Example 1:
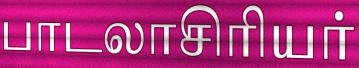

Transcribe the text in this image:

பாடலாசிரியர்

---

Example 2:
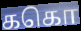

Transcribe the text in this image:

ககொ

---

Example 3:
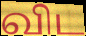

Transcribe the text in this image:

விட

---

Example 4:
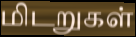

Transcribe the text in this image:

மிடறுகள்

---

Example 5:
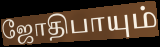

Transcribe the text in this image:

ஜோதிபாயும்